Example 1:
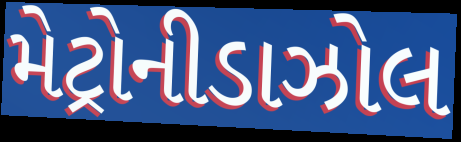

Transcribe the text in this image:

મેટ્રોનીડાઝોલ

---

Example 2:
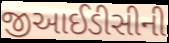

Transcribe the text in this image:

જીઆઈડીસીની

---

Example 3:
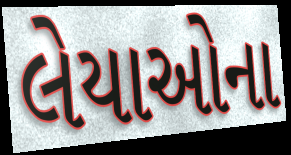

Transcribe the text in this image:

લેયાઓના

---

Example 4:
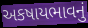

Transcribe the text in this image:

અકષાયભાવનું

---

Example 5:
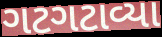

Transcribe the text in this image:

ગટગટાવ્યા